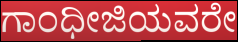
ಗಾಂಧೀಜಿಯವರೇ